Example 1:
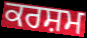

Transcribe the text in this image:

ਕਰਸ਼ਮ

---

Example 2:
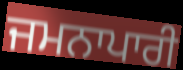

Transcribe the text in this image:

ਜਮਨਾਪਾਰੀ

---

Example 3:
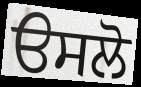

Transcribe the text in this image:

ੳਸਲੋ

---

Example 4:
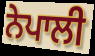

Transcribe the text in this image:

ਨੇਪਾਲੀ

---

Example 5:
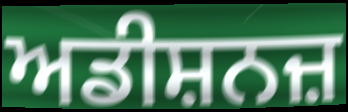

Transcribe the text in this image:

ਅਡੀਸ਼ਨਜ਼